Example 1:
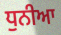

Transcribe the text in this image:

ਧੁਨੀਆ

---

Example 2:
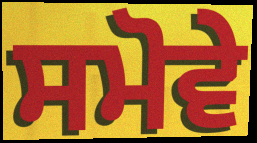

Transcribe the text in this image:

ਸਮੋਵੇ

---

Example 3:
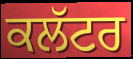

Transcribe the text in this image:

ਕਲੱਟਰ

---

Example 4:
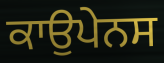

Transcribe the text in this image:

ਕਾਉਪੇਨਸ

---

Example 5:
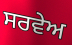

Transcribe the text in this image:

ਸਰਵੇਅ